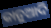
କାନୁଆଦି